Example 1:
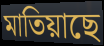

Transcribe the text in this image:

মাতিয়াছে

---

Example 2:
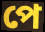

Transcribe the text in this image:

পে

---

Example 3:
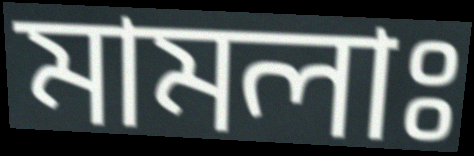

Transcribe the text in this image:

মামলাঃ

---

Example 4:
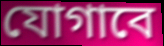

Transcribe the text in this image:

যোগাবে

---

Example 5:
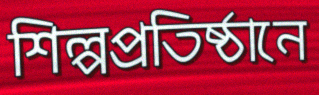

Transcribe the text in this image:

শিল্পপ্রতিষ্ঠানে